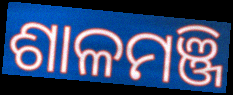
ଶାଳମଞ୍ଜି